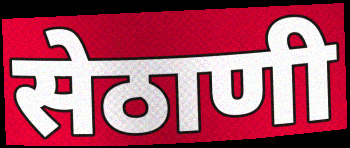
सेठाणी